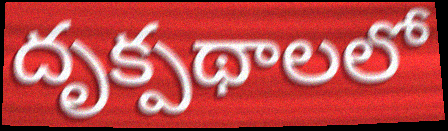
దృక్పథాలలో